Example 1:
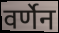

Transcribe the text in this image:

वर्णेन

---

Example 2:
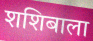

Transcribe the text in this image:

शशिबाला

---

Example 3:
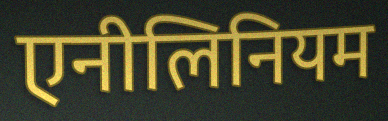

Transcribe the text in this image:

एनीलिनियम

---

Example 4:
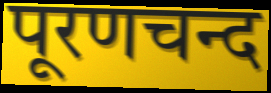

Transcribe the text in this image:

पूरणचन्द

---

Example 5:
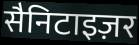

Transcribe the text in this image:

सैनिटाइज़र